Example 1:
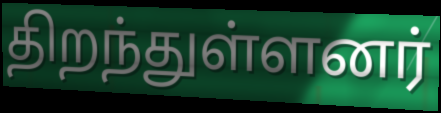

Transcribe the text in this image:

திறந்துள்ளனர்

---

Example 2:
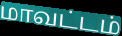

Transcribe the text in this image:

மாவட்டம்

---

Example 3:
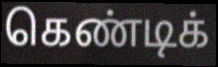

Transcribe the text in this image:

கெண்டிக்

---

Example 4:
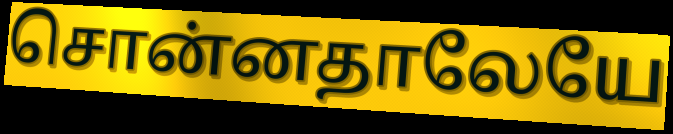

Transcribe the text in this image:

சொன்னதாலேயே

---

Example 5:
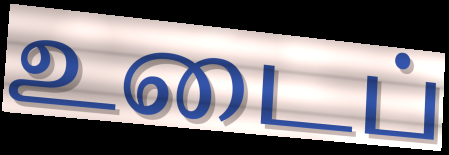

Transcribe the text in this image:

உடைப்